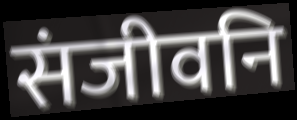
संजीवनि